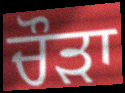
ਚੌੜਾ